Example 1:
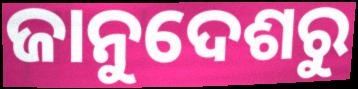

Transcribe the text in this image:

ଜାନୁଦେଶରୁ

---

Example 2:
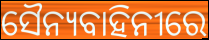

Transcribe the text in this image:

ସୈନ୍ଯବାହିନୀରେ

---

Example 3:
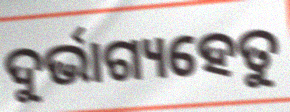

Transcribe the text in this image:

ଦୁର୍ଭାଗ୍ୟହେତୁ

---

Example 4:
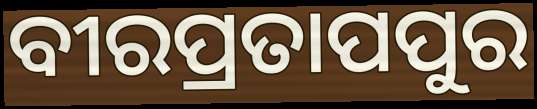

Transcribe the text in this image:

ବୀରପ୍ରତାପପୁର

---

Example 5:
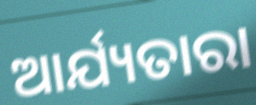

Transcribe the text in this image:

ଆର୍ଯ୍ୟତାରା